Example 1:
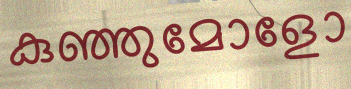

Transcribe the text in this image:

കുഞ്ഞുമോളോ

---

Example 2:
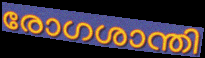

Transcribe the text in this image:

രോഗശാന്തി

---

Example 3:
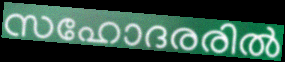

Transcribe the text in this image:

സഹോദരരിൽ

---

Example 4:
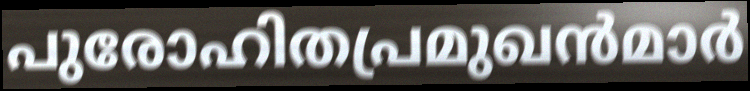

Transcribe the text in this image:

പുരോഹിതപ്രമുഖൻമാർ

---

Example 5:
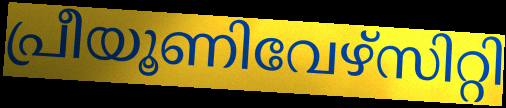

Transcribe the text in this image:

പ്രീയൂണിവേഴ്സിറ്റി